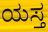
ಯಸ್ತ